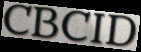
CBCID